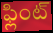
ఫ్లింట్